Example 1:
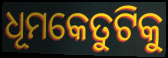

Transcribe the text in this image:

ଧୂମକେତୁଟିକୁ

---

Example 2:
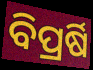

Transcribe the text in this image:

ବିପ୍ରର୍ଷି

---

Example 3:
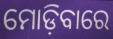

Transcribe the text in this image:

ମୋଡ଼ିବାରେ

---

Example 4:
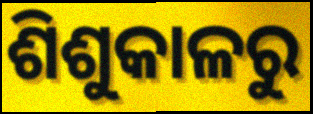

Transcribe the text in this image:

ଶିଶୁକାଳରୁ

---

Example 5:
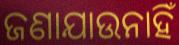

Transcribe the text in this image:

ଜଣାଯାଉନାହିଁ